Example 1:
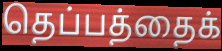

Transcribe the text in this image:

தெப்பத்தைக்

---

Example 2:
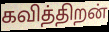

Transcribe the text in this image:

கவித்திறன்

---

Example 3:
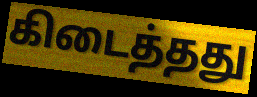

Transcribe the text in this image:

கிடைத்தது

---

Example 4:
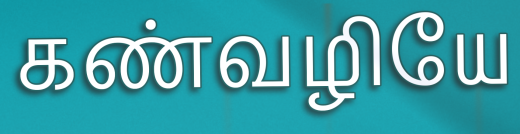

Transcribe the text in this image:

கண்வழியே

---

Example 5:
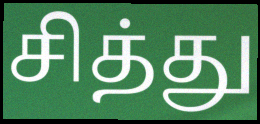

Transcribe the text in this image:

சித்து